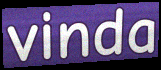
vinda